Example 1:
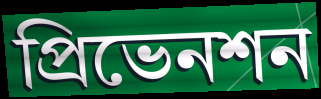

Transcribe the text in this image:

প্রিভেনশন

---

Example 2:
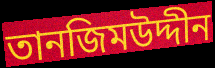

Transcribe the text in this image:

তানজিমউদ্দীন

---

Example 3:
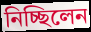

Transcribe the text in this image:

নিচ্ছিলেন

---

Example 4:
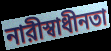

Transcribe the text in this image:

নারীস্বাধীনতা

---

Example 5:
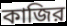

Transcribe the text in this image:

কাজির